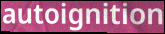
autoignition